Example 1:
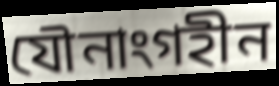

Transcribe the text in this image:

যৌনাংগহীন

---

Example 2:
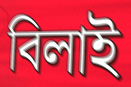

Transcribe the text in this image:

বিলাই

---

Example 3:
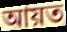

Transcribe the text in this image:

আয়ত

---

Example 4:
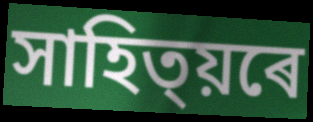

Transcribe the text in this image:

সাহিত্য়ৰে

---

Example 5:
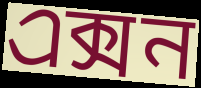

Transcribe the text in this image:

এক্সন